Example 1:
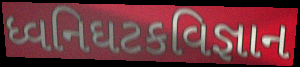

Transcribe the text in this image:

ધ્વનિઘટકવિજ્ઞાન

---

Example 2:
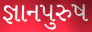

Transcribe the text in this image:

જ્ઞાનપુરુષ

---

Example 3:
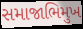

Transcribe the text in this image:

સમાજાભિમુખ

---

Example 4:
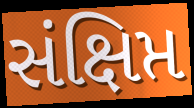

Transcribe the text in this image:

સંક્ષિપ્ત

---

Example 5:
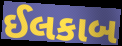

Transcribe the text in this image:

ઈલકાબ